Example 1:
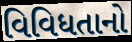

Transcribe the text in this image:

વિવિધતાનો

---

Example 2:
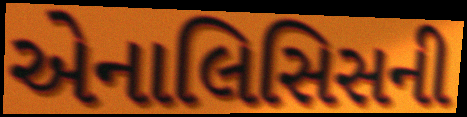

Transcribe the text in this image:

એનાલિસિસની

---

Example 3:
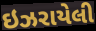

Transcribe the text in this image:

ઇઝરાયેલી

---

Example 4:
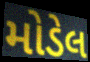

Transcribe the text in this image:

મોડેલ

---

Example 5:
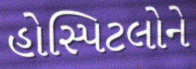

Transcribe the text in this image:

હોસ્પિટલોને